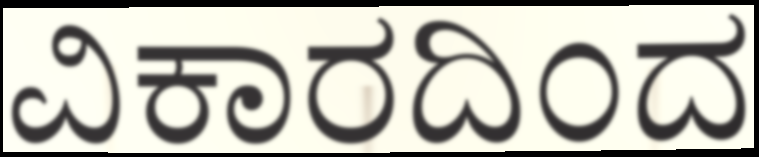
ವಿಕಾರದಿಂದ